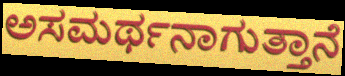
ಅಸಮರ್ಥನಾಗುತ್ತಾನೆ